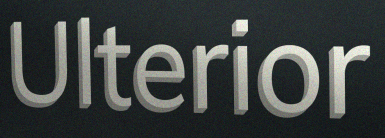
Ulterior